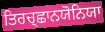
ਤਿਰਚ੍ਛਾਨਯੋਨਿਯਾ